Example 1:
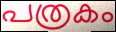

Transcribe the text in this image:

പത്രകം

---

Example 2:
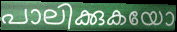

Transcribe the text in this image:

പാലിക്കുകയോ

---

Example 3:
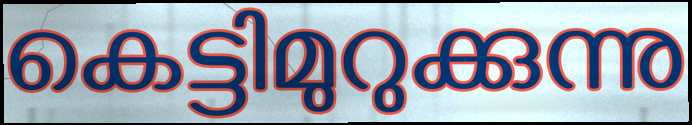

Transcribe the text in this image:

കെട്ടിമുറുക്കുന്നു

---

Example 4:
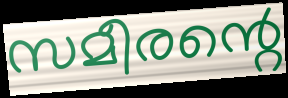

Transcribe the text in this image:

സമീരന്റെ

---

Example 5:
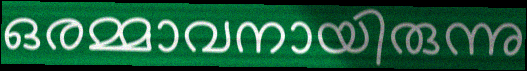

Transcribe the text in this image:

ഒരമ്മാവനായിരുന്നു